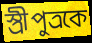
স্ত্রীপুত্রকে